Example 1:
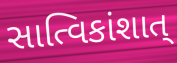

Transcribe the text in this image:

સાત્વિકાંશાત્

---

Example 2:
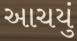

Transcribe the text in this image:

આચયું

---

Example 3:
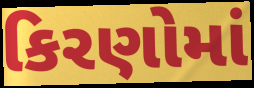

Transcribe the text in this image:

કિરણોમાં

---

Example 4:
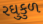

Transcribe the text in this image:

રઘુકુળ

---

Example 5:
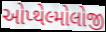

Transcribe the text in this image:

ઓપ્થેલ્મોલોજી